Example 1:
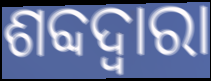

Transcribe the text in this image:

ଶବ୍ଦଦ୍ୱାରା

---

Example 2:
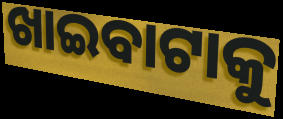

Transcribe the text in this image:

ଖାଇବାଟାକୁ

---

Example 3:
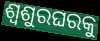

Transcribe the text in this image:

ଶ୍ୱଶୁରଘରକୁ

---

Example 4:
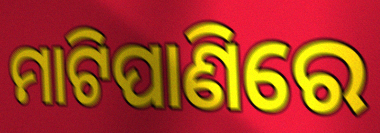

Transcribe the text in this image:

ମାଟିପାଣିରେ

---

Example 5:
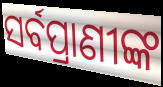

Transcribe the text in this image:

ସର୍ବପ୍ରାଣୀଙ୍କ